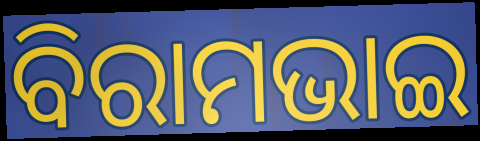
ବିରାମଭାଇ